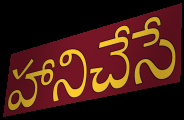
హానిచేసే